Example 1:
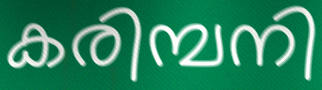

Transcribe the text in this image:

കരിമ്പനി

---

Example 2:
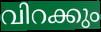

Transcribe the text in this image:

വിറക്കും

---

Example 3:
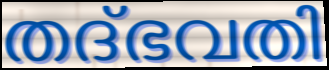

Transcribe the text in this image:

തദ്ഭവതി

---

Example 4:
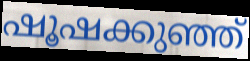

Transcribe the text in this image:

ഷൂഷക്കുഞ്ഞ്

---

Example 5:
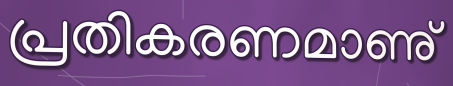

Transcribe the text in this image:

പ്രതികരണമാണു്